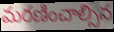
మరణించాల్సిన